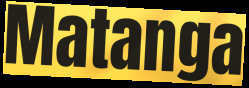
Matanga